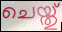
ചെയ്തു്